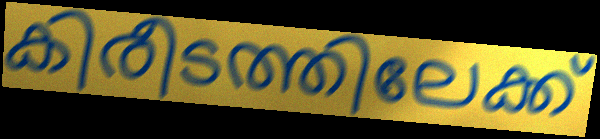
കിരീടത്തിലേക്ക്